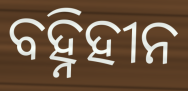
ବହ୍ନିହୀନ